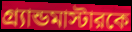
গ্র্যান্ডমাস্টারকে